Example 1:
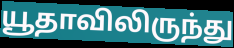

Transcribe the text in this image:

யூதாவிலிருந்து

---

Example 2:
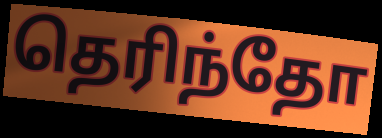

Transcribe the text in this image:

தெரிந்தோ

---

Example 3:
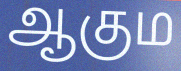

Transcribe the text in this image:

ஆகும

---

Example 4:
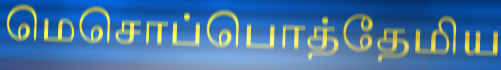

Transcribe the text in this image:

மெசொப்பொத்தேமிய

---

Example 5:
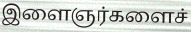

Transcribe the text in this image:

இளைஞர்களைச்